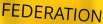
FEDERATION